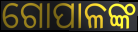
ଗୋପାଳଙ୍କ